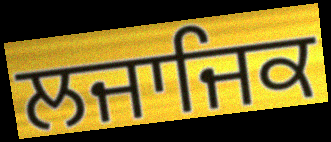
ਲਜਾਜਿਕ